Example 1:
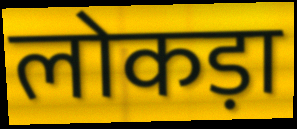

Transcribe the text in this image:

लोकड़ा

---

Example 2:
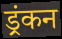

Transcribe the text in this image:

ड्रंकन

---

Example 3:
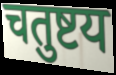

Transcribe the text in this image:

चतुष्टय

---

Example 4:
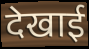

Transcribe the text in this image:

देखाई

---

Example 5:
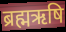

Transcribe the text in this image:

ब्रह्मऋषि